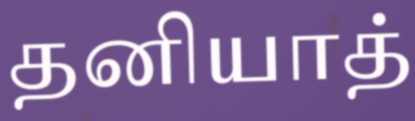
தனியாத்